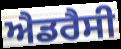
ਐਡਰੈਸੀ